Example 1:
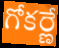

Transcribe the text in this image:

గోకర్ణే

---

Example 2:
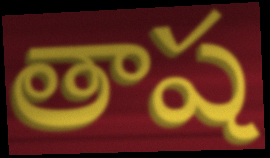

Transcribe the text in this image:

తాష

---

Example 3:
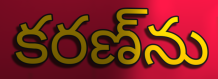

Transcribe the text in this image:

కరణ్‌ను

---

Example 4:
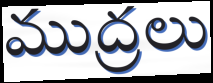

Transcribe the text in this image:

ముద్రలు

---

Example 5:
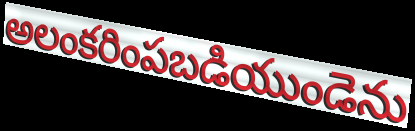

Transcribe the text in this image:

అలంకరింపబడియుండెను